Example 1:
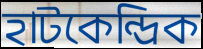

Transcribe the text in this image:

হাটকেন্দ্রিক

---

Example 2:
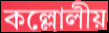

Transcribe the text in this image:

কল্লোলীয়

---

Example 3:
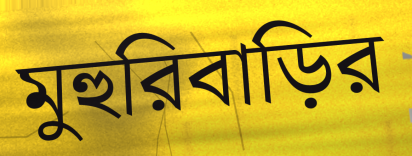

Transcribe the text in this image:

মুহুরিবাড়ির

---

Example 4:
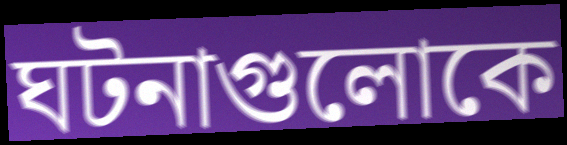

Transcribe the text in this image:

ঘটনাগুলোকে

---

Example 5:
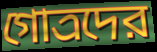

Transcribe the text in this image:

গোত্রদের